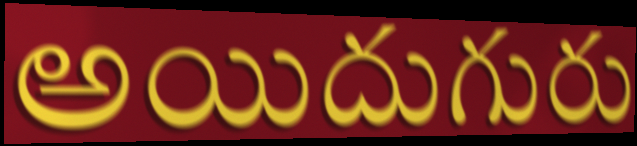
అయిదుగురు